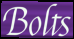
Bolts